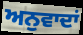
ਅਨੁਵਾਦਾਂ